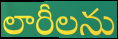
లారీలను